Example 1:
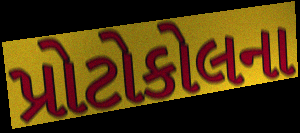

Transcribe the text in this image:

પ્રોટોકોલના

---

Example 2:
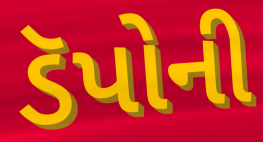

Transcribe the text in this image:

ડૅપોની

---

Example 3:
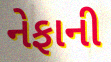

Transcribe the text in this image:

નેફાની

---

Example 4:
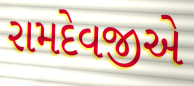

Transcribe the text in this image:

રામદેવજીએ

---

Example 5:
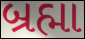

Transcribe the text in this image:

બ્રહ્મા